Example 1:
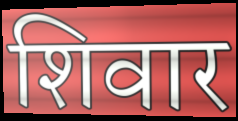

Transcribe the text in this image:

शिवार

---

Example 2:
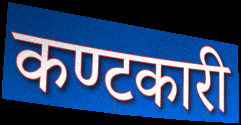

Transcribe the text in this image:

कण्टकारी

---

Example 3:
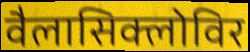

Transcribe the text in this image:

वैलासिक्लोविर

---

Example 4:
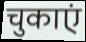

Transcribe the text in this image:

चुकाएं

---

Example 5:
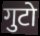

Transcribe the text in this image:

गुटो